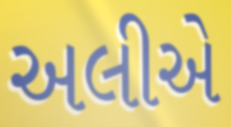
અલીએ